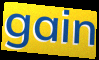
gain